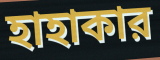
হাহাকার